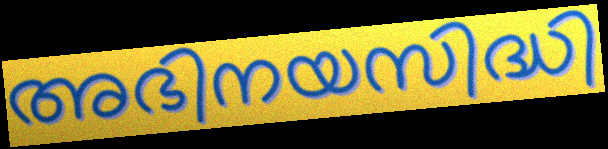
അഭിനയസിദ്ധി